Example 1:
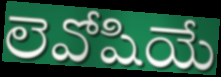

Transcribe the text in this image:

లెవోషియే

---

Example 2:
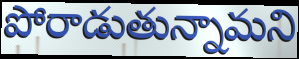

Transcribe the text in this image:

పోరాడుతున్నామని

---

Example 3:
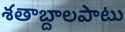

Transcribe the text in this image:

శతాబ్దాలపాటు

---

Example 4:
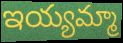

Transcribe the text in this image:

ఇయ్యమ్మా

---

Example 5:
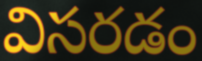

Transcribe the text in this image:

విసరడం